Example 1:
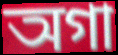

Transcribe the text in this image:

অগা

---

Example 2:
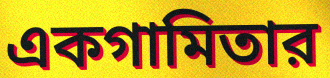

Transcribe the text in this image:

একগামিতার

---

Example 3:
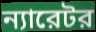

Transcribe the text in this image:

ন্যারেটর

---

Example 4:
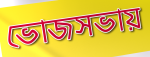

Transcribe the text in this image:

ভোজসভায়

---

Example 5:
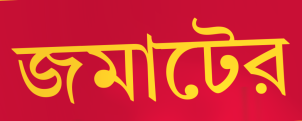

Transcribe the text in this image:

জমাটের